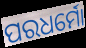
ପରଧର୍ମୋ